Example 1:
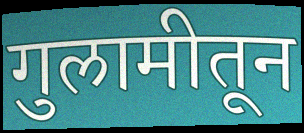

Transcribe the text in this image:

गुलामीतून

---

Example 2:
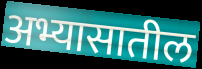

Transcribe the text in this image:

अभ्यासातील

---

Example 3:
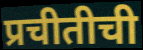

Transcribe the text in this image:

प्रचीतीची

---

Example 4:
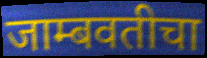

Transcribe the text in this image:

जाम्बवतीचा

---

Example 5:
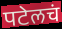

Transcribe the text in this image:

पटेलचं